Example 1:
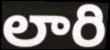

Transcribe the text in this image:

లారి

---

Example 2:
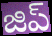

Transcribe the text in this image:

జిప్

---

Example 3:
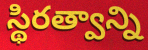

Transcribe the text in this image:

స్థిరత్వాన్ని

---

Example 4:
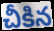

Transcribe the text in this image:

చీకిన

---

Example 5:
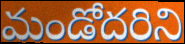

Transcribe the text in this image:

మండోదరిని